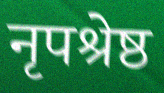
नृपश्रेष्ठ